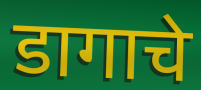
डागाचे